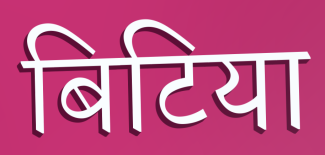
बिटिया